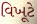
વિખૂટે